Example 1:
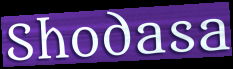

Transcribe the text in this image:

Shodasa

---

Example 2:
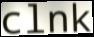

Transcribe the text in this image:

clnk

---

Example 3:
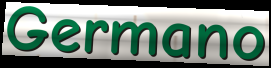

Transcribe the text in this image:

Germano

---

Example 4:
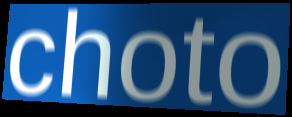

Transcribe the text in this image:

choto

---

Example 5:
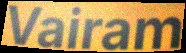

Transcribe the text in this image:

Vairam